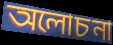
অলোচনা